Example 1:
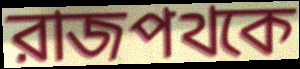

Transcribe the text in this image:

রাজপথকে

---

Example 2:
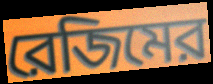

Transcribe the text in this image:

রেজিমের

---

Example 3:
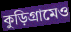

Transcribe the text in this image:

কুড়িগ্রামেও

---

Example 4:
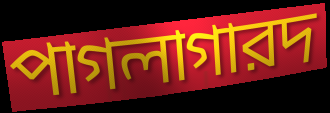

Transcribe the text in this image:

পাগলাগারদ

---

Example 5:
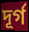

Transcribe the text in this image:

দূর্গ